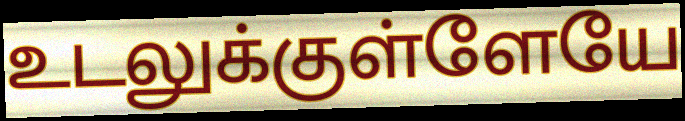
உடலுக்குள்ளேயே